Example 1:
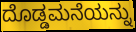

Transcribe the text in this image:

ದೊಡ್ಡಮನೆಯನ್ನು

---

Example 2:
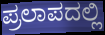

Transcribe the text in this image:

ಪ್ರಲಾಪದಲ್ಲಿ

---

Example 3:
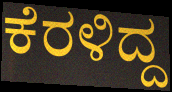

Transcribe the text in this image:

ಕೆರಳಿದ್ದ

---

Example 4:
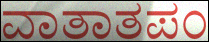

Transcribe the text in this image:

ವಾತಾತಪಂ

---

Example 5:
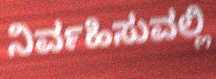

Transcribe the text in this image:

ನಿರ್ವಹಿಸುವಲ್ಲಿ